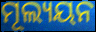
ମୂଲ୍ୟୟନ